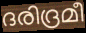
ദരിദ്രമീ